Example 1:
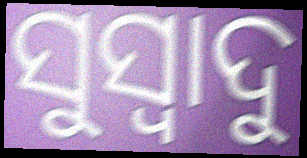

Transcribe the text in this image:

ସୁସ୍ୱାଦୁ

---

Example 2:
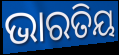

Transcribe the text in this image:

ଭାରତିୟ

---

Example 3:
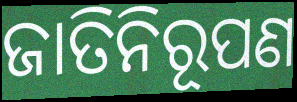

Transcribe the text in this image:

ଜାତିନିରୂପଣ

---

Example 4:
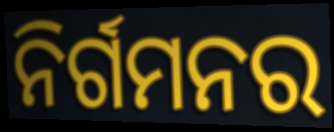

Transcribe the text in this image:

ନିର୍ଗମନର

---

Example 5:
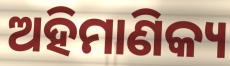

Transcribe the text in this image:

ଅହିମାଣିକ୍ୟ